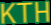
KTH